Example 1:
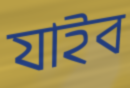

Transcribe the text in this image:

যাইব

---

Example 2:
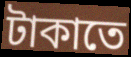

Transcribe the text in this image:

টাকাতে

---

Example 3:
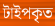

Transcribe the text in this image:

টাইপকৃত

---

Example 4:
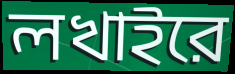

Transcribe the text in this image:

লখাইরে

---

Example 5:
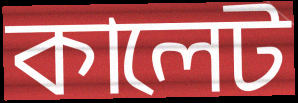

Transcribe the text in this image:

কালেট